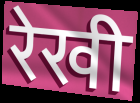
रेखी